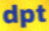
dpt